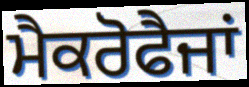
ਮੈਕਰੋਫੈਜਾਂ